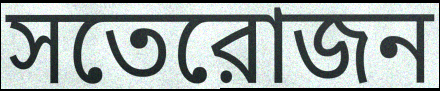
সতেরোজন